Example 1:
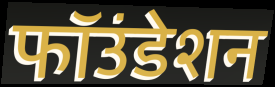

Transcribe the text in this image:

फॉउंडेशन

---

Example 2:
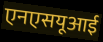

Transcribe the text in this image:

एनएसयूआई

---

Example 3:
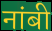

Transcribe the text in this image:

नांबी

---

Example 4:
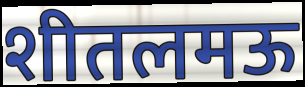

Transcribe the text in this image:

शीतलमऊ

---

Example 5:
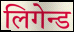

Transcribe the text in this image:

लिगेन्ड